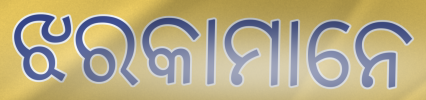
ଝରକାମାନେ